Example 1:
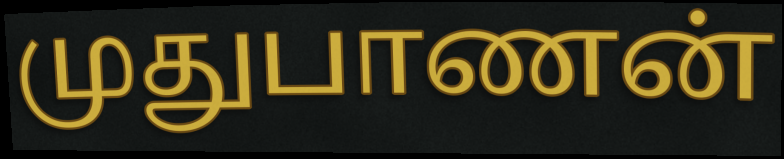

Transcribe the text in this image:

முதுபாணன்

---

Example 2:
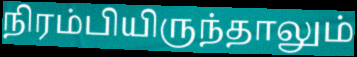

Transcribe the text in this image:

நிரம்பியிருந்தாலும்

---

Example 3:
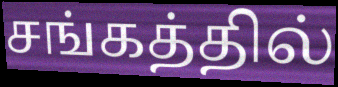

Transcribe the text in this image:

சங்கத்தில்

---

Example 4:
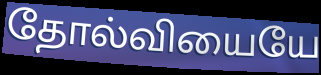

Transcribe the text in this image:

தோல்வியையே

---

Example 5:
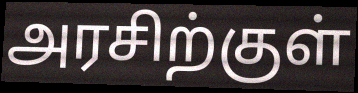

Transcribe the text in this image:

அரசிற்குள்